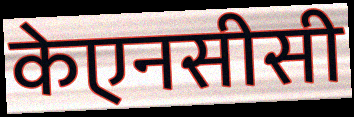
केएनसीसी